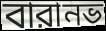
বারানভ